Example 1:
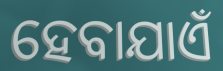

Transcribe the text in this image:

ହେବାଯାଏଁ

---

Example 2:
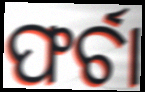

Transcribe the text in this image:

ଫର୍ଚା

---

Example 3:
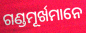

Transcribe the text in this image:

ଗଣ୍ଡମୂର୍ଖମାନେ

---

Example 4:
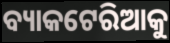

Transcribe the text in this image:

ବ୍ୟାକଟେରିଆକୁ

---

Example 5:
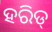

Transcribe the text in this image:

ହରିଡ୍